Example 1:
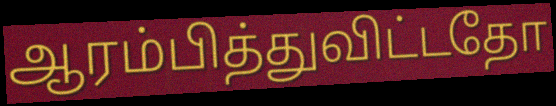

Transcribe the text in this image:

ஆரம்பித்துவிட்டதோ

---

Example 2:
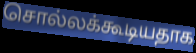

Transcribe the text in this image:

சொல்லக்கூடியதாக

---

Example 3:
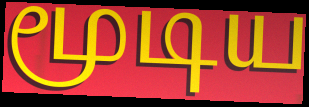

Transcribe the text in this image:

மூடிய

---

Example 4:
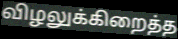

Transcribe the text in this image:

விழலுக்கிறைத்த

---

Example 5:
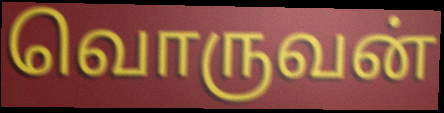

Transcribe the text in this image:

வொருவன்